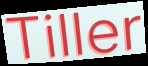
Tiller